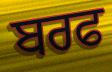
ਬਰਫ